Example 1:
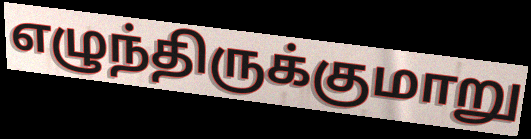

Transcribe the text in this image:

எழுந்திருக்குமாறு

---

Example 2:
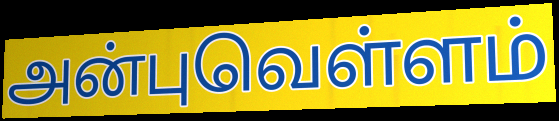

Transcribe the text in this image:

அன்புவெள்ளம்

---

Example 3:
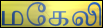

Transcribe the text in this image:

மகேலி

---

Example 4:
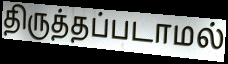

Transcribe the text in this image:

திருத்தப்படாமல்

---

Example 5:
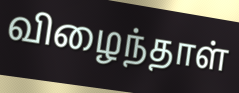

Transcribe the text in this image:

விழைந்தாள்